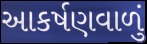
આકર્ષણવાળું